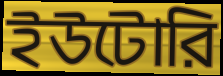
ইউটোরি